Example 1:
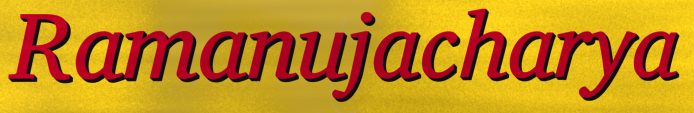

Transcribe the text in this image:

Ramanujacharya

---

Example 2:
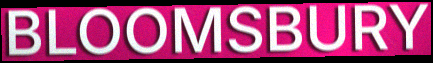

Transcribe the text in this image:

BLOOMSBURY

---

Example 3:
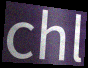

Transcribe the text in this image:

chl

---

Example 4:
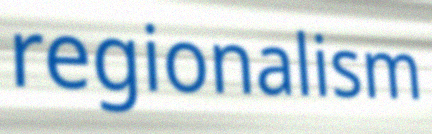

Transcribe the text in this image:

regionalism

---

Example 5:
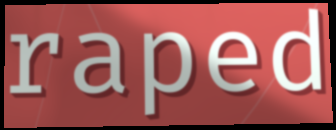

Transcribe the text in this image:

raped